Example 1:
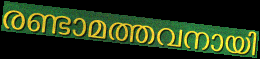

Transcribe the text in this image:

രണ്ടാമത്തവനായി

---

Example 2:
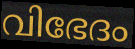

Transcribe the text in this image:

വിഭേദം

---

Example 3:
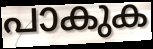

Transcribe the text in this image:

പാകുക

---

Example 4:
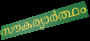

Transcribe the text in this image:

സൗകര്യാർത്ഥം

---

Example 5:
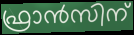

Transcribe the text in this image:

ഫ്രാൻസിന്